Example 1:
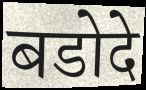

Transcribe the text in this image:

बडोदे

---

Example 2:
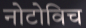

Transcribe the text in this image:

नोटोविच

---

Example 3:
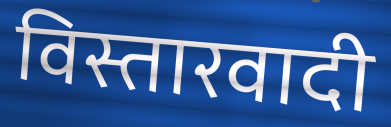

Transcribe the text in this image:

विस्तारवादी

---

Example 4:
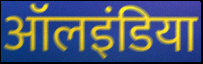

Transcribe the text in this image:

ऑलइंडिया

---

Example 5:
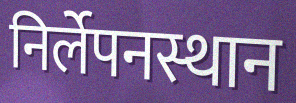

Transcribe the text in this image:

निर्लेपनस्थान